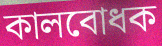
কালবোধক